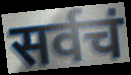
सर्वचं